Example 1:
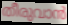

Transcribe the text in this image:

തീരുവാൻ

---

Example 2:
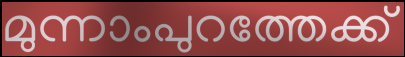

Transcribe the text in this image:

മുന്നാംപുറത്തേക്ക്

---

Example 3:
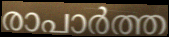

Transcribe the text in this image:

രാപാർത്ത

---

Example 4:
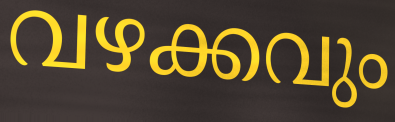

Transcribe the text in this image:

വഴക്കവും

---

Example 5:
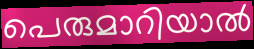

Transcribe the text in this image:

പെരുമാറിയാൽ